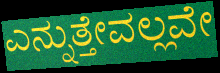
ಎನ್ನುತ್ತೇವಲ್ಲವೇ